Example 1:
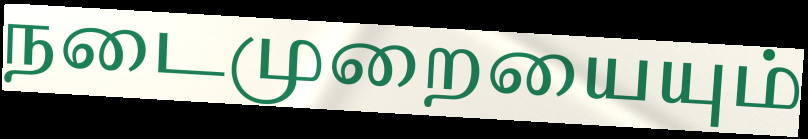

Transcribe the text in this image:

நடைமுறையையும்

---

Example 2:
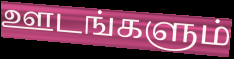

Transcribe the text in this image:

ஊடங்களும்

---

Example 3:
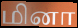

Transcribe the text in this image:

மினா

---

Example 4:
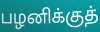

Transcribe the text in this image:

பழனிக்குத்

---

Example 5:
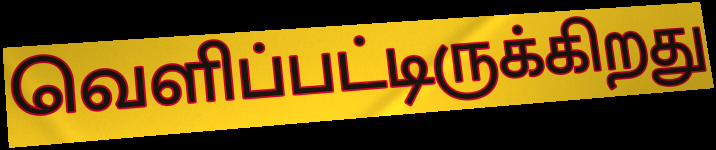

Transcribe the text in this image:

வெளிப்பட்டிருக்கிறது